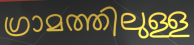
ഗ്രാമത്തിലുള്ള